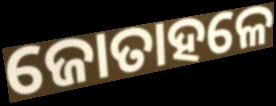
ଜୋତାହଳେ